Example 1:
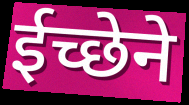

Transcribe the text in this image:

ईच्छेने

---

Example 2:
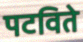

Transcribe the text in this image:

पटविते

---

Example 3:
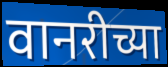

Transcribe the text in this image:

वानरीच्या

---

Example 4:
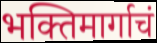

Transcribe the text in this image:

भक्तिमार्गाचं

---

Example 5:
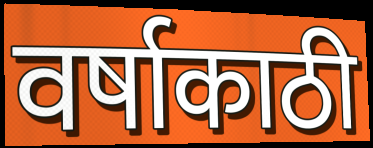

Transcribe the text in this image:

वर्षाकाठी